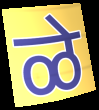
ळे